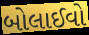
બોલાઈવો